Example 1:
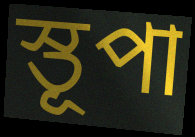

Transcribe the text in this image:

স্তূপা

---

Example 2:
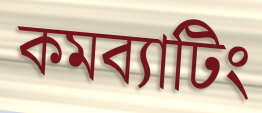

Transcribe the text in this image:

কমব্যাটিং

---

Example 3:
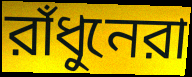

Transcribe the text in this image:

রাঁধুনেরা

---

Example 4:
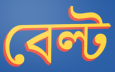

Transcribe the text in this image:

বেল্ট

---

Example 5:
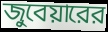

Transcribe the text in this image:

জুবেয়ারের